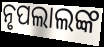
ନୃପଲାଲଙ୍କ